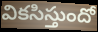
వికసిస్తుందో